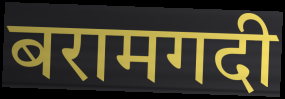
बरामगदी